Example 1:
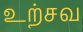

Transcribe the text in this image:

உற்சவ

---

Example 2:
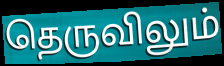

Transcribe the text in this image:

தெருவிலும்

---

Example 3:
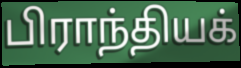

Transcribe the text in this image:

பிராந்தியக்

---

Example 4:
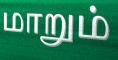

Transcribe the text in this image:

மாறும்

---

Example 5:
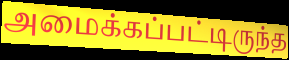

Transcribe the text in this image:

அமைக்கப்பட்டிருந்த